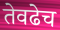
तेवढेच